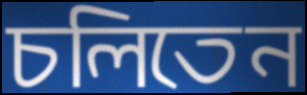
চলিতেন